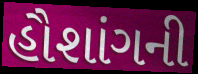
હૌશાંગની